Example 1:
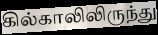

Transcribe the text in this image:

கில்காலிலிருந்து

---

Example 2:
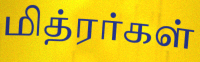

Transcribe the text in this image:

மித்ரர்கள்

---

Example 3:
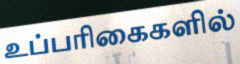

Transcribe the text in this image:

உப்பரிகைகளில்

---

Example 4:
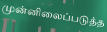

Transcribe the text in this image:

முன்னிலைப்படுத்த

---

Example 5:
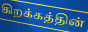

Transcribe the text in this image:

கிறக்கத்தின்